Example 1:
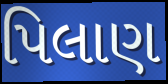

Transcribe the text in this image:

પિલાણ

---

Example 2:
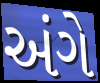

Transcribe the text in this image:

અંગે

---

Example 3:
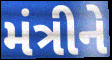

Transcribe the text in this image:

મંત્રીને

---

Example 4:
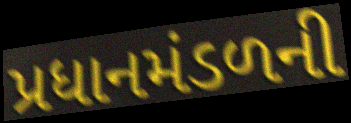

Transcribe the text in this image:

પ્રધાનમંડળની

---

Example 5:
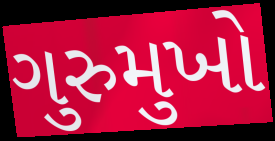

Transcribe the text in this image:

ગુરુમુખો